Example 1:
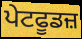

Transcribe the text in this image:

ਪੇਟਫੂਡਜ਼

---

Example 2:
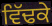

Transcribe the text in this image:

ਵਿੱਢਕੇ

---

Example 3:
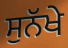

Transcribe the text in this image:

ਸੁਨੱਖੇ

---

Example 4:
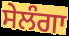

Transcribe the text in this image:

ਸੇਲੰਗਾ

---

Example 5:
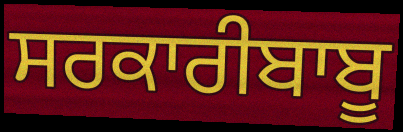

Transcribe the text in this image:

ਸਰਕਾਰੀਬਾਬੂ